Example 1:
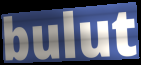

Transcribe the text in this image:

bulut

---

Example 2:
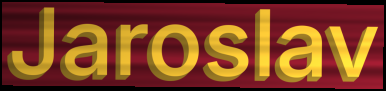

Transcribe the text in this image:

Jaroslav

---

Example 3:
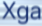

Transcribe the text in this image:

Xga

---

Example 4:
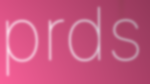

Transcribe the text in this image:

prds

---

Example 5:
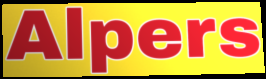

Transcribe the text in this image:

Alpers